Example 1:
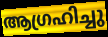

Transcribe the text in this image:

ആഗ്രഹിച്ചു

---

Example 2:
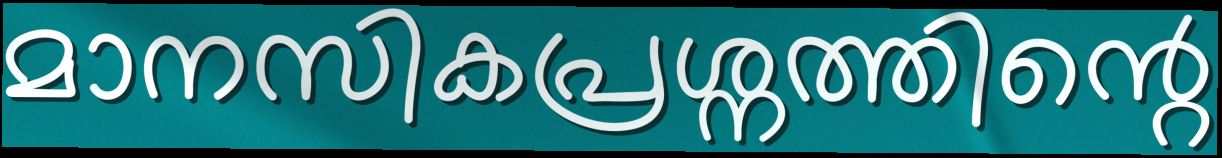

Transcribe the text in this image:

മാനസികപ്രശ്നത്തിന്റെ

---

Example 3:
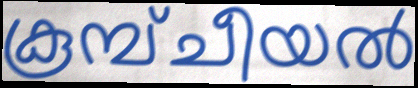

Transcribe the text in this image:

കൂമ്പ്ചീയൽ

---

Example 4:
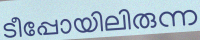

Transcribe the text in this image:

ടീപ്പോയിലിരുന്ന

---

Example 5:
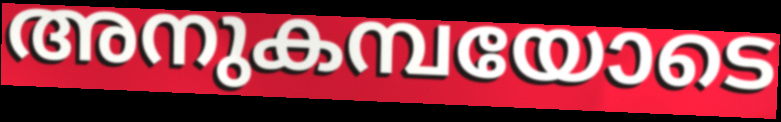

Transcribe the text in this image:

അനുകമ്പയോടെ